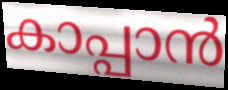
കാപ്പാൻ